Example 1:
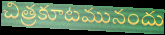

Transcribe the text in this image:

చిత్రకూటమునందు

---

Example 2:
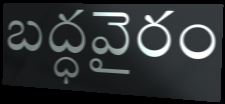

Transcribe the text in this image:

బద్ధవైరం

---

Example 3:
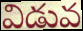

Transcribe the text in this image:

విడువ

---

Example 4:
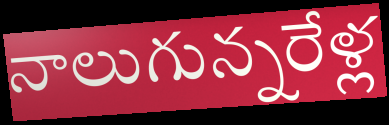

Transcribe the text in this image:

నాలుగున్నరేళ్ల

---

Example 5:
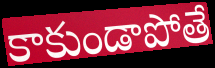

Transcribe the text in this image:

కాకుండాపోతే